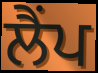
ਲੈਂਪ